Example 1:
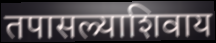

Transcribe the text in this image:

तपासल्याशिवाय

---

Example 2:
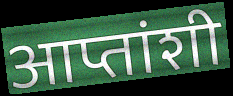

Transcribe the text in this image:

आप्तांशी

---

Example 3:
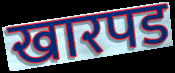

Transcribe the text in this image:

खारपड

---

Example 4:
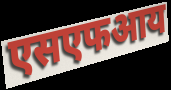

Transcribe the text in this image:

एसएफआय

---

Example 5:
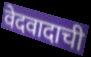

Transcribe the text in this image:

वेदवादाची